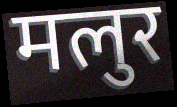
मलुर